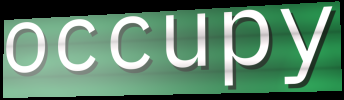
occupy